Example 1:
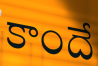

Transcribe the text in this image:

కాందే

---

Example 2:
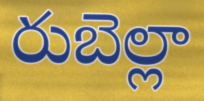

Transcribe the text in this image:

రుబెల్లా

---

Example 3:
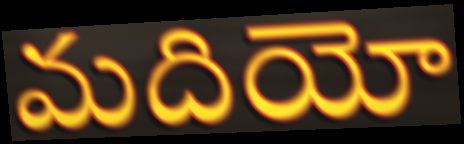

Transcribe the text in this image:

మదియో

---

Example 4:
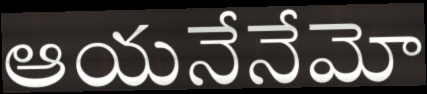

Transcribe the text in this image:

ఆయనేనేమో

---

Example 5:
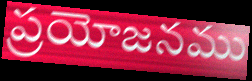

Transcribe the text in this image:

ప్రయోజనము